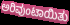
ಅರಿವುಂಟಾಯಿತು